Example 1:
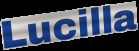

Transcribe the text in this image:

Lucilla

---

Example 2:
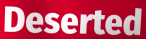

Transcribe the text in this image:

Deserted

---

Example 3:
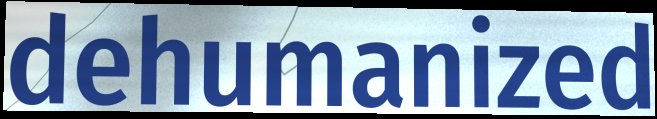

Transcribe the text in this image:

dehumanized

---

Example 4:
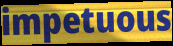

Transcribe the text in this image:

impetuous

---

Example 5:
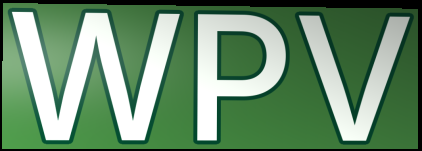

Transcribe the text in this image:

WPV